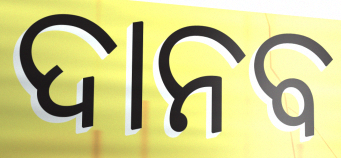
ଦାନବ